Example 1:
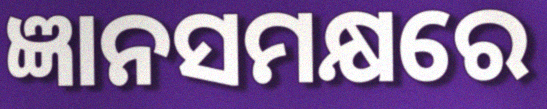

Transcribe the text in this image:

ଜ୍ଞାନସମକ୍ଷରେ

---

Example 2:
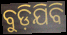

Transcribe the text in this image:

ବୁଡ଼ିଯିବି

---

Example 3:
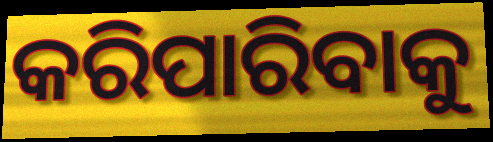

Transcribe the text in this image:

କରିପାରିବାକୁ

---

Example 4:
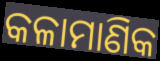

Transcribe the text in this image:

କଳାମାଣିକ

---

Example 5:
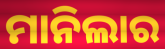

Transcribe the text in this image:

ମାନିଲାର